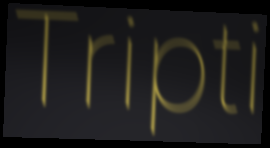
Tripti